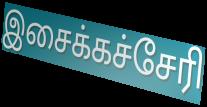
இசைக்கச்சேரி